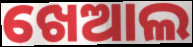
ଖେଆଲ